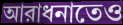
আরাধনাতেও